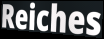
Reiches